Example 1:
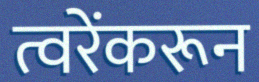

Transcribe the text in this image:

त्वरेंकरून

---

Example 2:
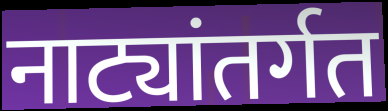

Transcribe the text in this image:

नाट्यांतर्गत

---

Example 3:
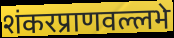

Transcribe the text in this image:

शंकरप्राणवल्लभे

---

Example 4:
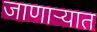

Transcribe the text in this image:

जाणाऱ्यात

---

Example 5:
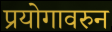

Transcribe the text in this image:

प्रयोगावरुन